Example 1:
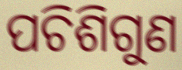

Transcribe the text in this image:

ପଚିଶିଗୁଣ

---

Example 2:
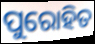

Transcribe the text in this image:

ପୁରୋହିତ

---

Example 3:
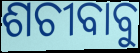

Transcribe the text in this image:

ଶଚୀବାବୁ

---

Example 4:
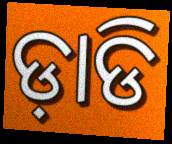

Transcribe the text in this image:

ଡ଼ାଡି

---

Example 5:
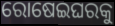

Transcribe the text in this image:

ରୋଷେଇଘରକୁ